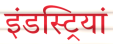
इंडस्ट्रियां